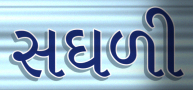
સઘળી